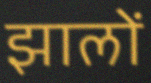
झालों